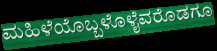
ಮಹಿಳೆಯೊಬ್ಬಳೊಳೈವರೊಡಗೂ